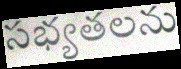
సభ్యతలను